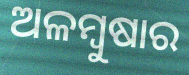
ଅଳମ୍ବୁଷାର